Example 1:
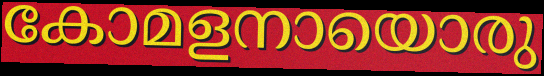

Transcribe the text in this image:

കോമളനായൊരു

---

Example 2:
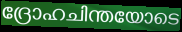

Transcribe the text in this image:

ദ്രോഹചിന്തയോടെ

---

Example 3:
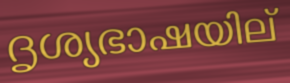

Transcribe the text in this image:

ദൃശ്യഭാഷയില്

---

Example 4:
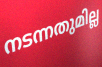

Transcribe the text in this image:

നടന്നതുമില്ല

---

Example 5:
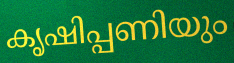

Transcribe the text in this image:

കൃഷിപ്പണിയും